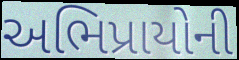
અભિપ્રાયોની